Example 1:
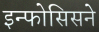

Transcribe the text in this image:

इन्फोसिसने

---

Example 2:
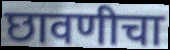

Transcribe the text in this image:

छावणीचा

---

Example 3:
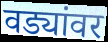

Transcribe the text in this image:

वड्यांवर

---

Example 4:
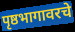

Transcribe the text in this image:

पृष्ठभागावरचे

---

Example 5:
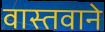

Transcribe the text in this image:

वास्तवाने